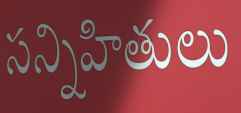
సన్నిహితులు